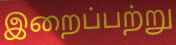
இறைப்பற்று